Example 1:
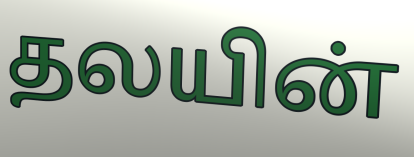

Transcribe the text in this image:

தலயின்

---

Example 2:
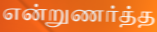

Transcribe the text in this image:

என்றுணர்த்த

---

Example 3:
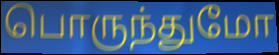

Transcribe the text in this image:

பொருந்துமோ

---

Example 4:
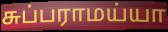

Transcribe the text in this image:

சுப்பராமய்யா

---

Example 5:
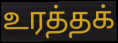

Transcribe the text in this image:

உரத்தக்